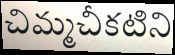
చిమ్మచీకటిని